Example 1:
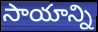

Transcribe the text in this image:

సాయాన్ని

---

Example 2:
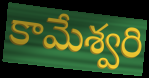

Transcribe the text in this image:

కామేశ్వరి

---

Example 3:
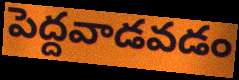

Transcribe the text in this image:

పెద్దవాడవడం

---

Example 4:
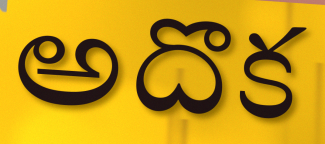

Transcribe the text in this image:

అదొక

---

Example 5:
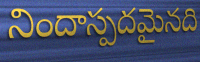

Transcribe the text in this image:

నిందాస్పదమైనది